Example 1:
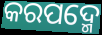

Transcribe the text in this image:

କରପଦ୍ମେ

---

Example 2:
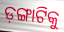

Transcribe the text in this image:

ଡ଼ଙ୍ଗାଟିକୁ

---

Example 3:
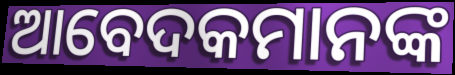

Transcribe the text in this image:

ଆବେଦକମାନଙ୍କ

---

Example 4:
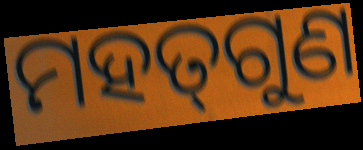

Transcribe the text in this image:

ମହତ୍‍ଗୁଣ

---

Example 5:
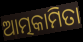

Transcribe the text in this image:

ଆତ୍ମକାମିତା